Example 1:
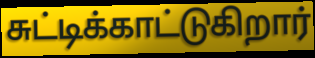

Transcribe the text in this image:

சுட்டிக்காட்டுகிறார்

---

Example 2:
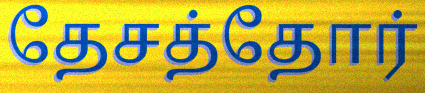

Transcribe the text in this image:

தேசத்தோர்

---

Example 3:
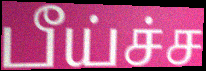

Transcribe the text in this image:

பீய்ச்ச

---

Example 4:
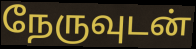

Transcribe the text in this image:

நேருவுடன்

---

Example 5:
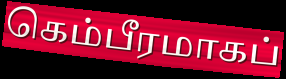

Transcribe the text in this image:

கெம்பீரமாகப்